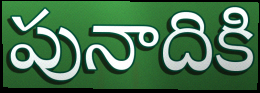
పునాదికి